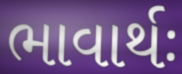
ભાવાર્થઃ